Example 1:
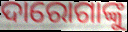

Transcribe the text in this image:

ଦାରୋଗାଙ୍କୁ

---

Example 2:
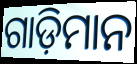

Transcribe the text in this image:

ଗାଡ଼ିମାନ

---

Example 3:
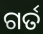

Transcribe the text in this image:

ଗର୍ତ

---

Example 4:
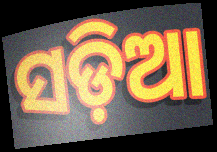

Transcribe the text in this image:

ସଡ଼ିଆ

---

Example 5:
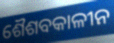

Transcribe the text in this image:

ଶୈଶବକାଳୀନ